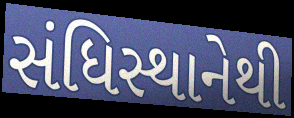
સંધિસ્થાનેથી